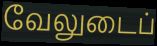
வேலுடைப்